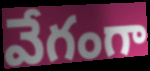
వేగంగా